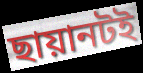
ছায়ানটই